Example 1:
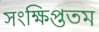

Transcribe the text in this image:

সংক্ষিপ্ততম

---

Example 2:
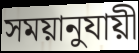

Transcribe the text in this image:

সময়ানুযায়ী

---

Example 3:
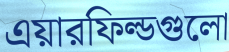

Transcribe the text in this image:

এয়ারফিল্ডগুলো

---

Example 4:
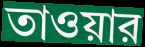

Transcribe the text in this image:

তাওয়ার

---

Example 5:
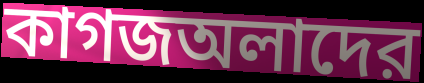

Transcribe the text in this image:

কাগজঅলাদের